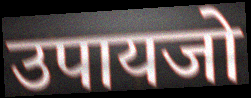
उपायजो